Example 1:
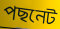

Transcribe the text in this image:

পছনেট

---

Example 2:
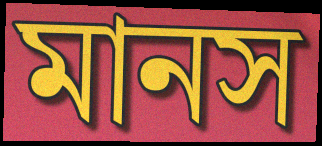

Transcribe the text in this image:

মানস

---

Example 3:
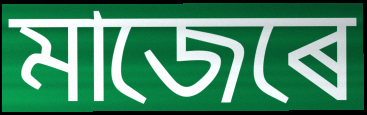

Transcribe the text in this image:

মাজেৰে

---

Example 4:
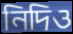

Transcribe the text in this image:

নিদিও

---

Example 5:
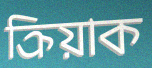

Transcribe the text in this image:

ক্ৰিয়াক